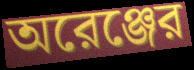
অরেঞ্জের